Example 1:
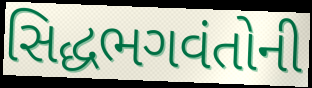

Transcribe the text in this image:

સિદ્ધભગવંતોની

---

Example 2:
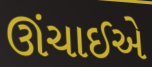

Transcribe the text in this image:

ઊંચાઈએ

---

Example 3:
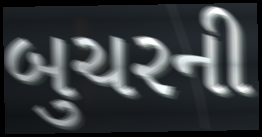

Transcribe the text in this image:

બુચરની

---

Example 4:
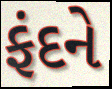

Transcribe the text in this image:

ફંદને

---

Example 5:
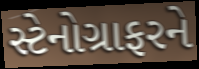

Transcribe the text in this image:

સ્ટેનોગ્રાફરને